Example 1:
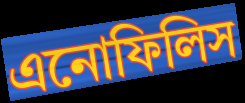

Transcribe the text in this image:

এনোফিলিস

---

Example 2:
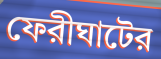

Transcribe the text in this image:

ফেরীঘাটের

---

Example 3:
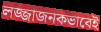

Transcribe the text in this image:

লজ্জাজনকভাবেই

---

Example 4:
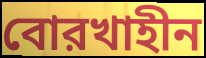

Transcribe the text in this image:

বোরখাহীন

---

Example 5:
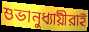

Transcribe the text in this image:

শুভানুধ্যায়ীরাই